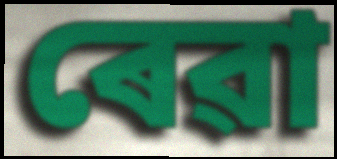
ৰেৱা